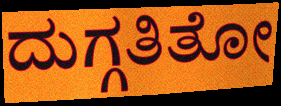
ದುಗ್ಗತಿತೋ